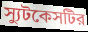
স্যুটকেসটির